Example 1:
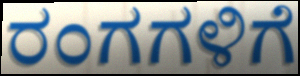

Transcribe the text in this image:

ರಂಗಗಳಿಗೆ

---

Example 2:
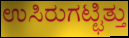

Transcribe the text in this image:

ಉಸಿರುಗಟ್ಟಿತ್ತು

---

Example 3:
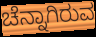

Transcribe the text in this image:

ಚೆನ್ನಾಗಿರುವ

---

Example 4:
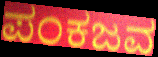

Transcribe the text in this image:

ಪಂಕಜವ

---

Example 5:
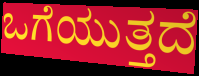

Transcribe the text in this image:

ಒಗೆಯುತ್ತದೆ